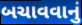
બચાવવાનું